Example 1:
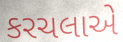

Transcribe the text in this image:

કરચલાએ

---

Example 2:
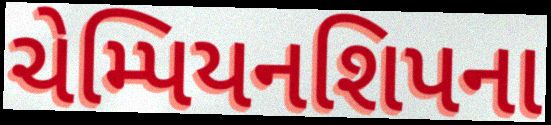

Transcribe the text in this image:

ચેમ્પિયનશિપના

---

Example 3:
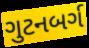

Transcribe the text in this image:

ગુટનબર્ગ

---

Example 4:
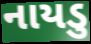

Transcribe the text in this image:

નાયડુ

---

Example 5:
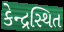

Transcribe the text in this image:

કેન્દ્રસ્થિત